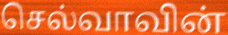
செல்வாவின்